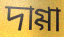
দাগ্গা